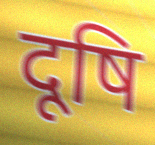
दूषि